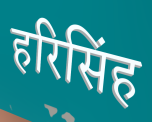
हरिसिंह